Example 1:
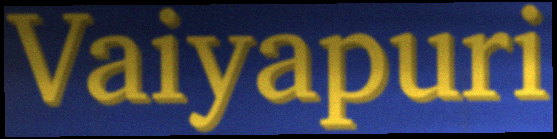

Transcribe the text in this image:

Vaiyapuri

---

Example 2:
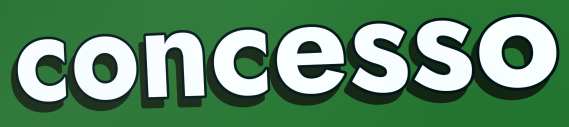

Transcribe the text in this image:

concesso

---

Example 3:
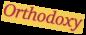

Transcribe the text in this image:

Orthodoxy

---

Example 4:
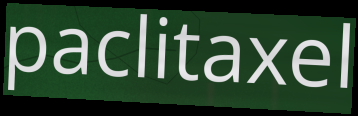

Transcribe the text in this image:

paclitaxel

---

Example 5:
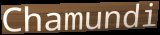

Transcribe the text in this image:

Chamundi